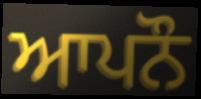
ਆਪਨੌ